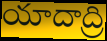
యాదాద్రి